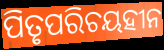
ପିତୃପରିଚୟହୀନ